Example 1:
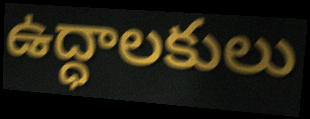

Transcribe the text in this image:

ఉద్ధాలకులు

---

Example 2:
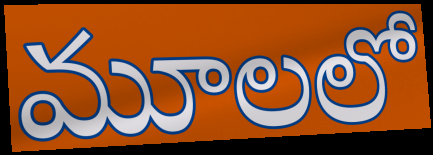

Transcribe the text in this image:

మూలలో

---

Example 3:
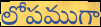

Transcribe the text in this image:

లోపముగా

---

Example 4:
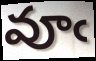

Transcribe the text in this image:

వూఁ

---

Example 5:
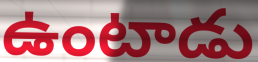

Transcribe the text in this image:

ఉంటాడు